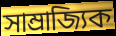
সাম্ৰাজ্যিক